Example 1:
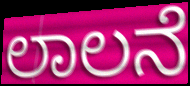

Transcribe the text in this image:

ಲಾಲನೆ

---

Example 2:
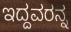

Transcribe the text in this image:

ಇದ್ದವರನ್ನ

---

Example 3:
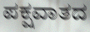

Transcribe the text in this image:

ಪಕ್ಷವಾತದ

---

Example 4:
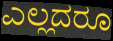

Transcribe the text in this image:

ಎಲ್ಲದರೂ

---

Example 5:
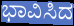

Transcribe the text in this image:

ಭಾವಿಸಿದ